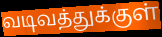
வடிவத்துக்குள்